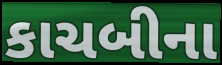
કાચબીના